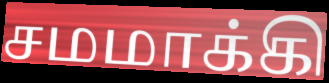
சமமாக்கி